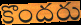
కొందరు